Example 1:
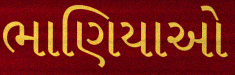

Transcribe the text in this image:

ભાણિયાઓ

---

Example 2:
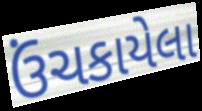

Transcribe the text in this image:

ઉંચકાયેલા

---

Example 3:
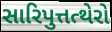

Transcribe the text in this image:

સારિપુત્તત્થેરો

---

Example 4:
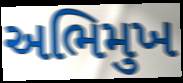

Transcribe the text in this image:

અભિમુખ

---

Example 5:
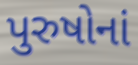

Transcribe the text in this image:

પુરુષોનાં